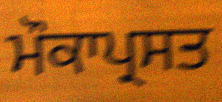
ਮੌਕਾਪ੍ਰਸਤ